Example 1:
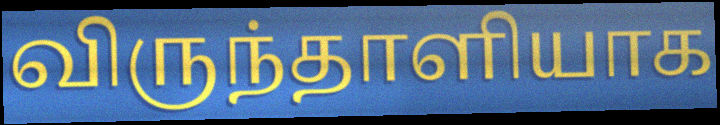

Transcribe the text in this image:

விருந்தாளியாக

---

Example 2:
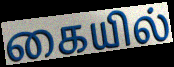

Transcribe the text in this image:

கையில்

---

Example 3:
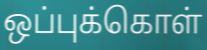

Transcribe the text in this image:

ஒப்புக்கொள்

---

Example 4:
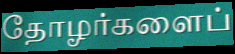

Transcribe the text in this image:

தோழர்களைப்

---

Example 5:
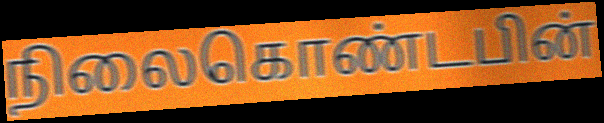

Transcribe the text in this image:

நிலைகொண்டபின்